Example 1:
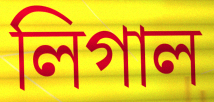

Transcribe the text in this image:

লিগাল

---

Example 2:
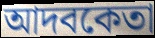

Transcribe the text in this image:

আদবকেতা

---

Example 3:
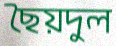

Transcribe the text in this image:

ছৈয়দুল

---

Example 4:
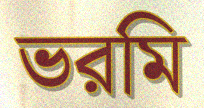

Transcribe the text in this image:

ভরমি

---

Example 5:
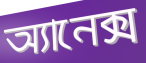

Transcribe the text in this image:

অ্যানেক্স